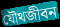
যৌথজীবন